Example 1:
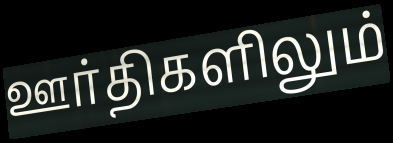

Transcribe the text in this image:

ஊர்திகளிலும்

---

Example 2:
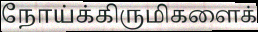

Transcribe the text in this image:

நோய்க்கிருமிகளைக்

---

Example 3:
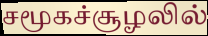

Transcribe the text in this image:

சமூகச்சூழலில்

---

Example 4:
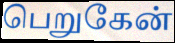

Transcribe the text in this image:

பெறுகேன்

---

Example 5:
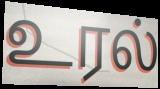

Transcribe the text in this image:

உரல்